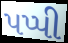
પપ્પી